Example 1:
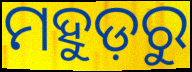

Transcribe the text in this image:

ମହୁଡ଼ରୁ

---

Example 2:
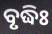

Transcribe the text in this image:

ବୃଦ୍ଧିଃ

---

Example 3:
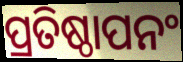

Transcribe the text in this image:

ପ୍ରତିଷ୍ଠାପନଂ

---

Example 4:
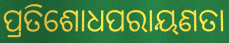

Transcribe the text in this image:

ପ୍ରତିଶୋଧପରାୟଣତା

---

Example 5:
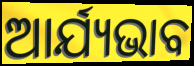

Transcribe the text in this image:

ଆର୍ଯ୍ୟଭାବ